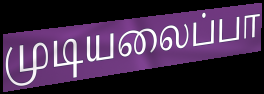
முடியலைப்பா